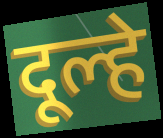
दूल्हे